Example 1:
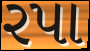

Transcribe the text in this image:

રપા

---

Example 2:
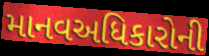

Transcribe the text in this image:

માનવઅધિકારોની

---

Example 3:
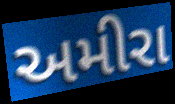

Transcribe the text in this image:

અમીરા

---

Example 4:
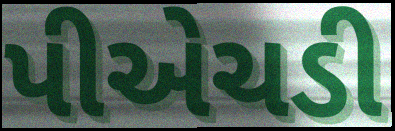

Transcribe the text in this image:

પીએચડી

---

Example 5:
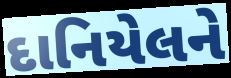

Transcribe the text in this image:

દાનિયેલને